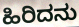
ಹಿರಿದನು